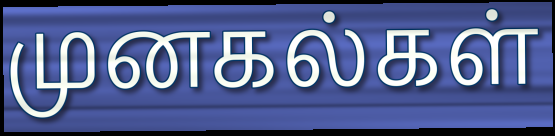
முனகல்கள்